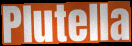
Plutella